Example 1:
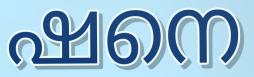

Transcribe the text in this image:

ഷനെ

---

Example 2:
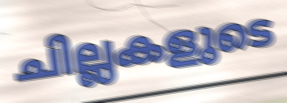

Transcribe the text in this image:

ചില്ലകളുടെ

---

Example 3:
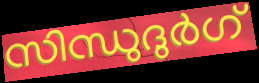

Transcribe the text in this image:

സിന്ധുദുർഗ്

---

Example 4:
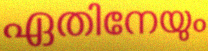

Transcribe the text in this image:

ഏതിനേയും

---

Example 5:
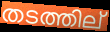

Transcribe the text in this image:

തടത്തില്